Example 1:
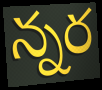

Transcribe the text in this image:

న్నర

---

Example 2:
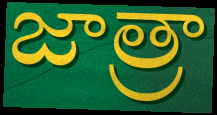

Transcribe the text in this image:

జాత్రా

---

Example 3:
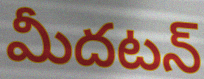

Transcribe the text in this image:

మీదటన్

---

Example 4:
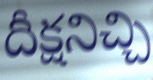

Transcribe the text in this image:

దీక్షనిచ్చి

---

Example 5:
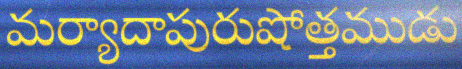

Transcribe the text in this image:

మర్యాదాపురుషోత్తముడు